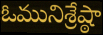
ఓమునిశ్రేష్ఠా